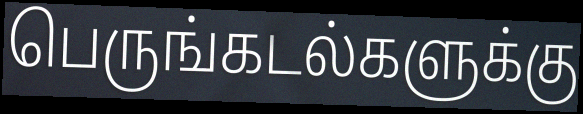
பெருங்கடல்களுக்கு